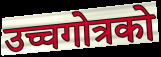
उच्चगोत्रको